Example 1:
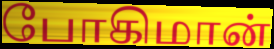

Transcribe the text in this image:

போகிமான்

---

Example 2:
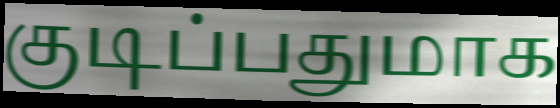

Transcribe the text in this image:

குடிப்பதுமாக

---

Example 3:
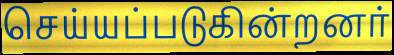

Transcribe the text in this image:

செய்யப்படுகின்றனர்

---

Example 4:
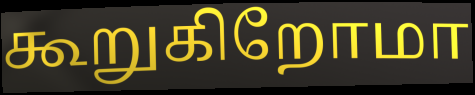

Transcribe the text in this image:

கூறுகிறோமா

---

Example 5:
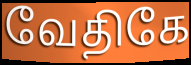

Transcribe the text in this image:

வேதிகே